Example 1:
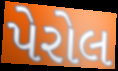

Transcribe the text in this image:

પેરોલ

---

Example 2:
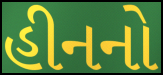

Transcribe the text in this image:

હીનનો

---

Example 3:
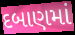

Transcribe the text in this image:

દબાણમાં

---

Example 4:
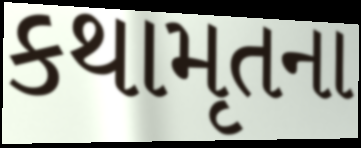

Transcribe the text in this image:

કથામૃતના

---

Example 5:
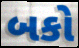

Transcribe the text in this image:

બકો